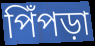
পিঁপড়া